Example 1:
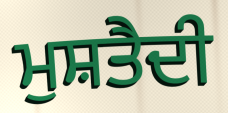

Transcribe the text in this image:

ਮੁਸ਼ਤੈਦੀ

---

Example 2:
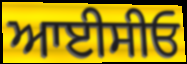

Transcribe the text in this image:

ਆਈਸੀਓ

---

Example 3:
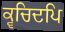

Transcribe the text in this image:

ਕ੍ਵਚਿਦਪਿ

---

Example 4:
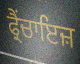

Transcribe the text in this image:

ਫ੍ਰੈਂਚਾਇਜ਼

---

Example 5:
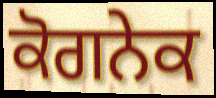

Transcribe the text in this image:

ਕੋਗਨੇਕ